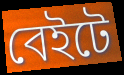
বেইটে